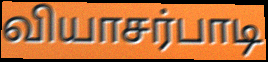
வியாசர்பாடி